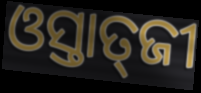
ଓସ୍ତାତ୍‌ଜୀ